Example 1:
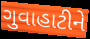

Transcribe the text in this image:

ગુવાહાટીને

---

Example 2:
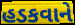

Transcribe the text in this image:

હડકવાને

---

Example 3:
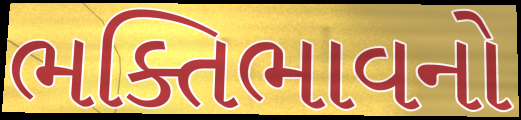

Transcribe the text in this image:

ભક્તિભાવનો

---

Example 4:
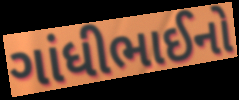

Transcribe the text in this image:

ગાંધીભાઈનો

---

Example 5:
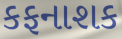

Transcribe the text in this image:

કફનાશક